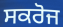
ਸਕਰੋਜ